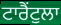
ਟਾਰੈਂਟੁਲਾ